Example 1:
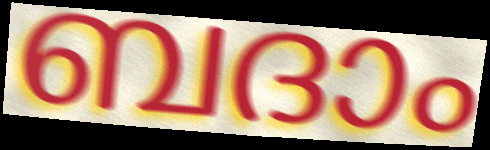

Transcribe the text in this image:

ബദാം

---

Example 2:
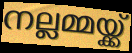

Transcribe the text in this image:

നല്ലമ്മയ്ക്ക്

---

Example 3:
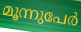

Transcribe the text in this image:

മൂന്നുപേർ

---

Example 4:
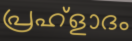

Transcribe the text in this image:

പ്രഹ്ളാദം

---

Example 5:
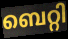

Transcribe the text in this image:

ബെറ്റി